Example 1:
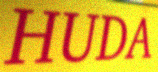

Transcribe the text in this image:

HUDA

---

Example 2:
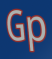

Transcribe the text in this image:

Gp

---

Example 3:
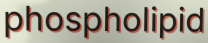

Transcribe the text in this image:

phospholipid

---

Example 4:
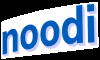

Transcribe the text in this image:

noodi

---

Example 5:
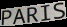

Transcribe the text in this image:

PARIS